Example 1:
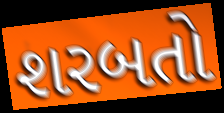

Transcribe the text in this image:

શરબતો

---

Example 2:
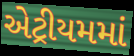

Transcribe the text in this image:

એટ્રીયમમાં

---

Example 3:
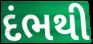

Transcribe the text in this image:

દંભથી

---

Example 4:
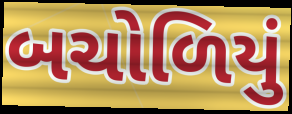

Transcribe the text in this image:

બચોળિયું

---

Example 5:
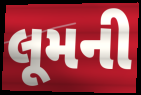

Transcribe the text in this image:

લૂમની